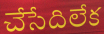
చేసేదిలేక